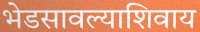
भेडसावल्याशिवाय